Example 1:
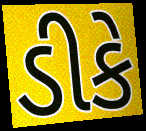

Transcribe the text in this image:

ડીકે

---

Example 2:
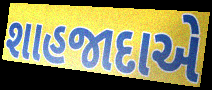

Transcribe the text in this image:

શાહજાદાએ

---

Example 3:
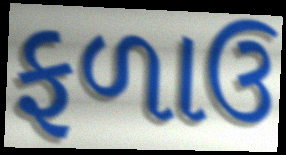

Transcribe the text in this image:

ફળાઉ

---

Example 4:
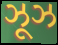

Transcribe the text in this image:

ઝૂઝ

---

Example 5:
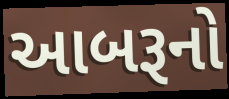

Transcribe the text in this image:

આબરૂનો